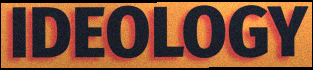
IDEOLOGY